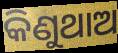
କିଣୁଥାଅ